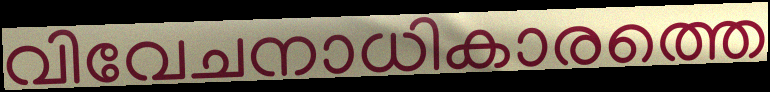
വിവേചനാധികാരത്തെ